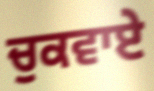
ਚੁਕਵਾਏ